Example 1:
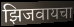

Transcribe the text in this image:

झिजवायचा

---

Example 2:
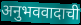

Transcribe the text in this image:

अनुभववादाची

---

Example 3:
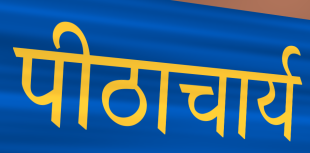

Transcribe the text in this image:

पीठाचार्य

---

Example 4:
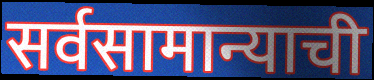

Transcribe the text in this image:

सर्वसामान्याची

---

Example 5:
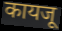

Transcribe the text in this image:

कायजू